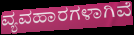
ವ್ಯವಹಾರಗಳಾಗಿವೆ